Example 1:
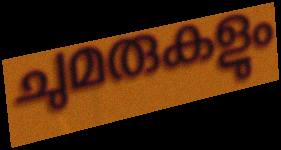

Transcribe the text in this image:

ചുമരുകളും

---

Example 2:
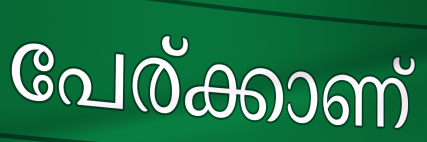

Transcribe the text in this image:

പേര്ക്കാണ്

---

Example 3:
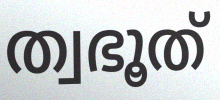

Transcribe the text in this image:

ത്വഭൂത്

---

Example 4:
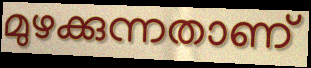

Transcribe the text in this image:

മുഴക്കുന്നതാണ്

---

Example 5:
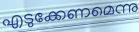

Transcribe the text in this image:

എടുക്കേണമെന്നു